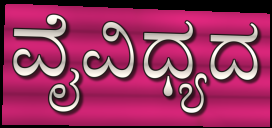
ವೈವಿಧ್ಯದ